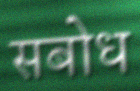
सबोध